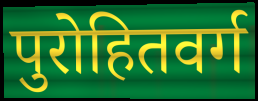
पुरोहितवर्ग